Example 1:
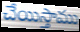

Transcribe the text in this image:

చేయిస్తాము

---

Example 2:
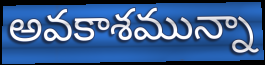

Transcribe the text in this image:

అవకాశమున్నా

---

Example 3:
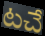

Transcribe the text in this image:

టచే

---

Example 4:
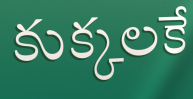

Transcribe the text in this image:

కుక్కలకే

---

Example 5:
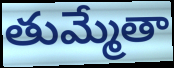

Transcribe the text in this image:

తుమ్మేతా